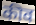
कीव